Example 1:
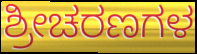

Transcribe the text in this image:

ಶ್ರೀಚರಣಗಳ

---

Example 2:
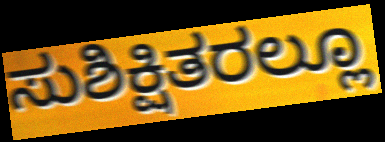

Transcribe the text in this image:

ಸುಶಿಕ್ಷಿತರಲ್ಲೂ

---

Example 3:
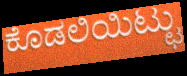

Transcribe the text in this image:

ಕೊಡಲಿಯಿಟ್ಟು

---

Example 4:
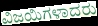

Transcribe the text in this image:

ವಿಜಯಿಗಳಾದರು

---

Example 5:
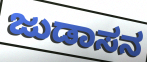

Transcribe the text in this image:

ಜುಡಾಸನ